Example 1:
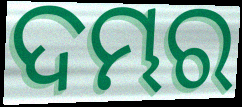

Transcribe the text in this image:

ଦମ୍ଭର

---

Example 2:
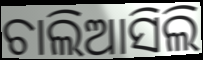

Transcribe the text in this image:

ଚାଲିଆସିଲି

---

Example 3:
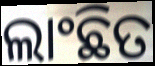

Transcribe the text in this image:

ଲାଂଛିତ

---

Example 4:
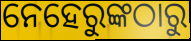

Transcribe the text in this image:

ନେହେରୁଙ୍କଠାରୁ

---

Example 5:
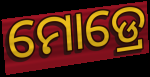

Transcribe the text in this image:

ମୋଡ୍ରେ